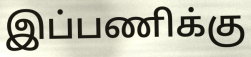
இப்பணிக்கு